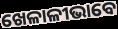
ଖେଳାଳୀଭାବେ